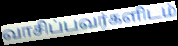
வாசிப்பவர்களிடம்